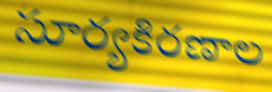
సూర్యకిరణాల